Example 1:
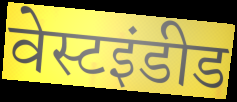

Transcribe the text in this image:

वेस्टइंडीड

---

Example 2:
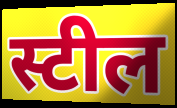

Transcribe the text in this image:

स्टील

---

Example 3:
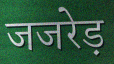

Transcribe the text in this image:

जजरेड़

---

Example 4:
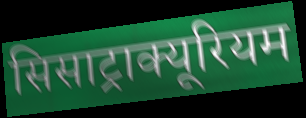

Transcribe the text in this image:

सिसाट्राक्यूरियम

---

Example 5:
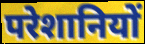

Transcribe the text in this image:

परेशानियों